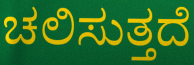
ಚಲಿಸುತ್ತದೆ